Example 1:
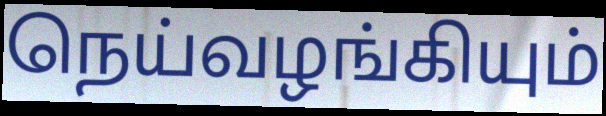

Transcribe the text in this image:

நெய்வழங்கியும்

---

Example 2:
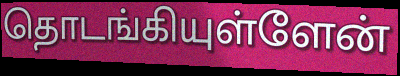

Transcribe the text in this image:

தொடங்கியுள்ளேன்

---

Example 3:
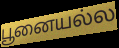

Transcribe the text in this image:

பூனையல்ல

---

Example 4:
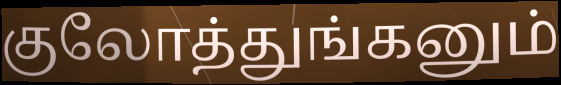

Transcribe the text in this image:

குலோத்துங்கனும்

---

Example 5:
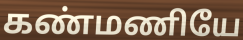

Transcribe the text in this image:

கண்மணியே